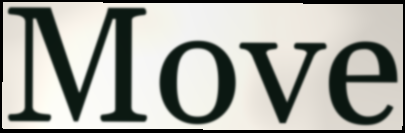
Move